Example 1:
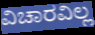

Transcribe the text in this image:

ವಿಚಾರವಿಲ್ಲ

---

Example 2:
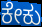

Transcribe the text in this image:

ಕೇಕು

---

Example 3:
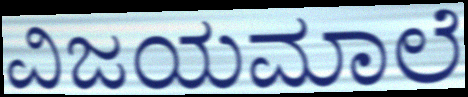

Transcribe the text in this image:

ವಿಜಯಮಾಲೆ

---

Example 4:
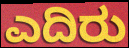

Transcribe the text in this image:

ಎದಿರು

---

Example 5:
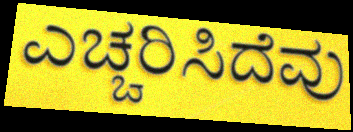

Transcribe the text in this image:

ಎಚ್ಚರಿಸಿದೆವು